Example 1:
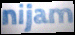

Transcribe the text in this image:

nijam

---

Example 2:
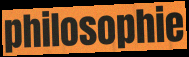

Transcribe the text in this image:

philosophie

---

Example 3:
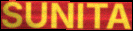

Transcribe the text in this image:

SUNITA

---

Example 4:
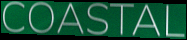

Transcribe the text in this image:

COASTAL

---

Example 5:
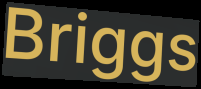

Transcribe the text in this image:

Briggs